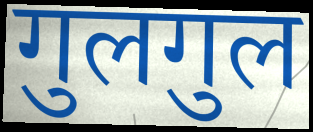
गुलगुल